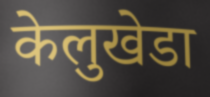
केलुखेडा